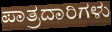
ಪಾತ್ರದಾರಿಗಳು